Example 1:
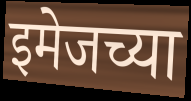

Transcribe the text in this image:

इमेजच्या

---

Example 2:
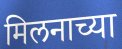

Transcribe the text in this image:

मिलनाच्या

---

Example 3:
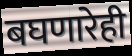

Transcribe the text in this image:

बघणारेही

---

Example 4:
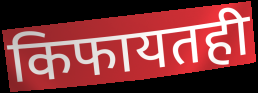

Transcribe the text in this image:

किफायतही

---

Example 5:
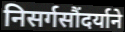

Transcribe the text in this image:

निसर्गसौंदर्याने